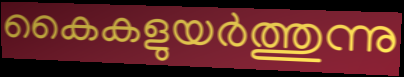
കൈകളുയർത്തുന്നു